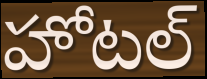
హోటల్